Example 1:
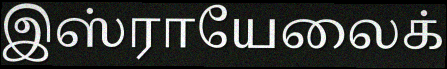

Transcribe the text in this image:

இஸ்ராயேலைக்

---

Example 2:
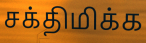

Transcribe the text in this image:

சக்திமிக்க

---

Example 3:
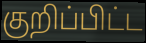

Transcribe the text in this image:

குறிப்பிட்ட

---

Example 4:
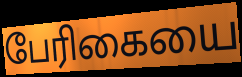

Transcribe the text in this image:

பேரிகையை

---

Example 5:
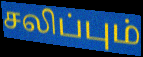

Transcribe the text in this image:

சலிப்பும்